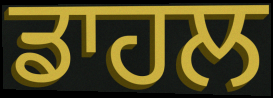
ਡਾਹਲ